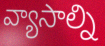
వ్యాసాల్ని